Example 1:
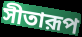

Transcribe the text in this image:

সীতারূপ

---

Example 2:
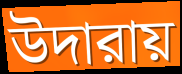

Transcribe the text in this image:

উদারায়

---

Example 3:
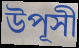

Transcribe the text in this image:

উপূসী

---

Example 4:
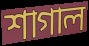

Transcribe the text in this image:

শাগাল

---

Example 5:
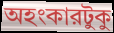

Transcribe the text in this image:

অহংকারটুকু